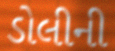
ડોલીની